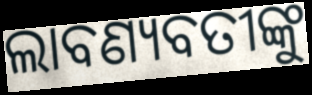
ଲାବଣ୍ୟବତୀଙ୍କୁ